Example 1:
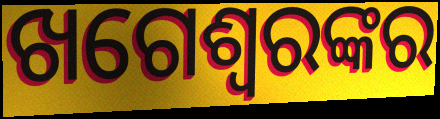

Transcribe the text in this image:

ଖଗେଶ୍ୱରଙ୍କର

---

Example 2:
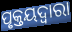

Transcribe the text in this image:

ପୃକ୍ତୟଦ୍ଵାରା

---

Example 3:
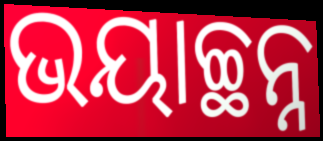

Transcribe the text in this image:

ଭୟାଚ୍ଛନ୍ନ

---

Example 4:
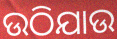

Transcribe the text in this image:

ଉଠିଯାଉ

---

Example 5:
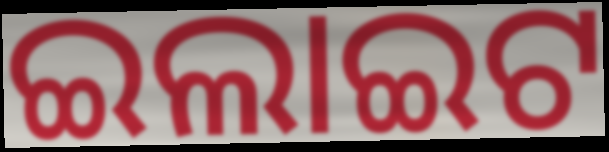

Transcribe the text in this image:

ଇଲାଇଟ